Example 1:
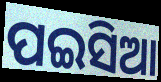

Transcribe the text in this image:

ପଇସିଆ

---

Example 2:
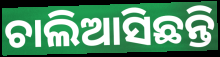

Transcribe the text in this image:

ଚାଲିଆସିଛନ୍ତି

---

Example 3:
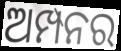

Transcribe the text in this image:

ଅମ୍ପନର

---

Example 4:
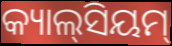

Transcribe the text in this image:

କ୍ୟାଲ୍‌ସିୟମ୍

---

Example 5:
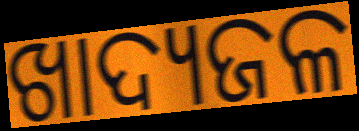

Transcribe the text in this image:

ଖାଦ୍ୟଜଳ